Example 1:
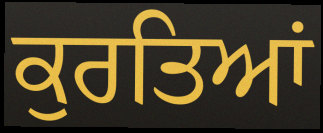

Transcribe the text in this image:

ਕੁਰਤਿਆਂ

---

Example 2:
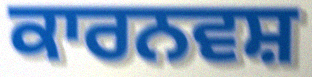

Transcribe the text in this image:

ਕਾਰਨਵਸ਼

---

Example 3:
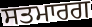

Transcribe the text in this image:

ਸਤਮਾਰਗ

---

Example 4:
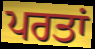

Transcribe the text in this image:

ਪਰਤਾਂ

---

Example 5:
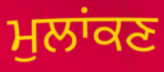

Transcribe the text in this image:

ਮੁਲਾਂਕਣ